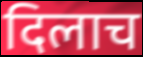
दिलाच